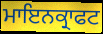
ਮਾਇਨਕ੍ਰਾਫਟ